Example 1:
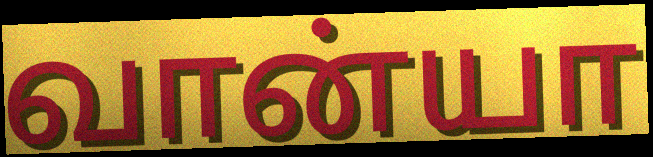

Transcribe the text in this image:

வான்யா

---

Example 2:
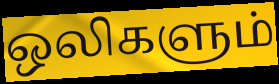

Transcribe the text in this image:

ஒலிகளும்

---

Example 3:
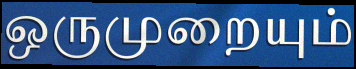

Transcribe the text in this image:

ஒருமுறையும்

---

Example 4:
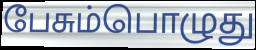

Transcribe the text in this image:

பேசும்பொழுது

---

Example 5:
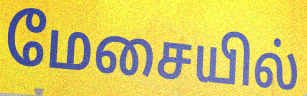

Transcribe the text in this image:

மேசையில்